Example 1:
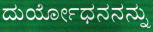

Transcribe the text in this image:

ದುರ್ಯೋಧನನನ್ನು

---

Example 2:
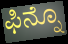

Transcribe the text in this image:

ಫಿನ್ನೊ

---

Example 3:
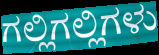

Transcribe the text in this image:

ಗಲ್ಲಿಗಲ್ಲಿಗಳು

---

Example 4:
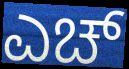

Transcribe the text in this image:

ಎಚ್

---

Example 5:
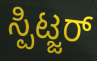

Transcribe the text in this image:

ಸ್ಪಿಟ್ಜರ್